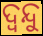
ଦ୍ଵନ୍ଦୁ